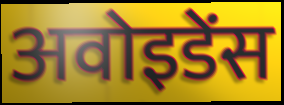
अवोइडेंस